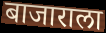
बाजाराला